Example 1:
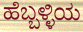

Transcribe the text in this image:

ಹೆಬ್ಬಳ್ಳಿಯ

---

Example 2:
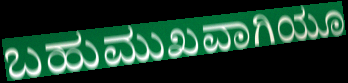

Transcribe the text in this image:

ಬಹುಮುಖವಾಗಿಯೂ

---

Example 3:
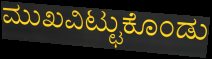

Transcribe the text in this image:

ಮುಖವಿಟ್ಟುಕೊಂಡು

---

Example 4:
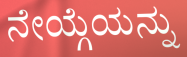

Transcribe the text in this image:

ನೇಯ್ಗೆಯನ್ನು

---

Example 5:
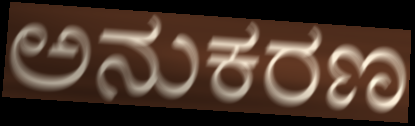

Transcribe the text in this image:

ಅನುಕರಣ